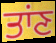
ਤਾਂਣ